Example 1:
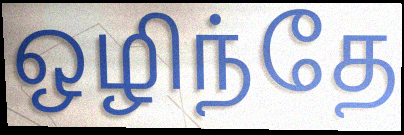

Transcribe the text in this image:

ஒழிந்தே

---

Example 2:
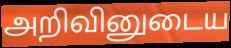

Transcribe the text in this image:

அறிவினுடைய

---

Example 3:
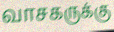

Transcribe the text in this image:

வாசகருக்கு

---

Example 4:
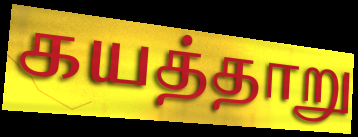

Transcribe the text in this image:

கயத்தாறு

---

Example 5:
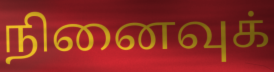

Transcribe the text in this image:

நினைவுக்